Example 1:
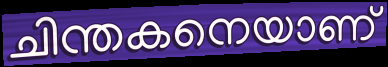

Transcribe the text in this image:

ചിന്തകനെയാണ്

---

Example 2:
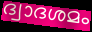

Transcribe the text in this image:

ദ്വാദശമം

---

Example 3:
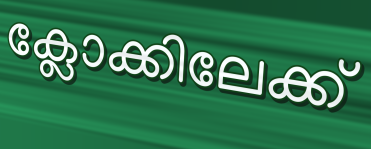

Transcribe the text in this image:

ക്ലോക്കിലേക്ക്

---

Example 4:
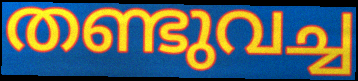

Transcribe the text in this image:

തണ്ടുവച്ച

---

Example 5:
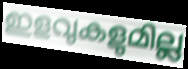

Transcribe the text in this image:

ഇളവുകളുമില്ല